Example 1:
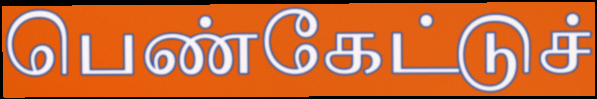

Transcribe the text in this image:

பெண்கேட்டுச்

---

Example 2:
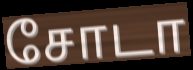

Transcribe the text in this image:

சோடா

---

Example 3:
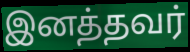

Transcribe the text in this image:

இனத்தவர்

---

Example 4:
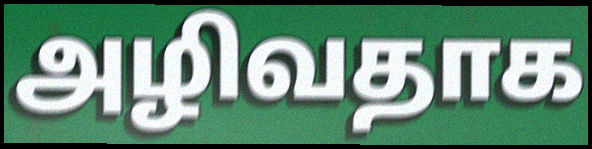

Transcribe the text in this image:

அழிவதாக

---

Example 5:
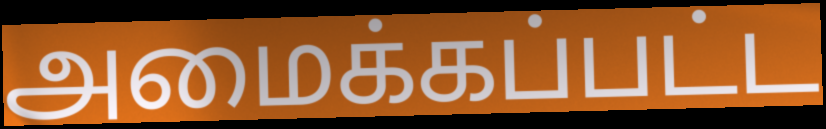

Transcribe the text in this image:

அமைக்கப்பட்ட